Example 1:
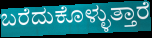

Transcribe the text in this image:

ಬರೆದುಕೊಳ್ಳುತ್ತಾರೆ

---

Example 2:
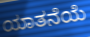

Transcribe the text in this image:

ಯಾತನೆಯೆ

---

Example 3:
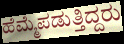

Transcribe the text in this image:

ಹೆಮ್ಮೆಪಡುತ್ತಿದ್ದರು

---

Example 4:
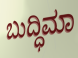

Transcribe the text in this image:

ಬುದ್ಧಿಮಾ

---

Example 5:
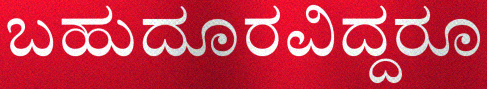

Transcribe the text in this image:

ಬಹುದೂರವಿದ್ದರೂ